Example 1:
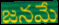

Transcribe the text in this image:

జనమే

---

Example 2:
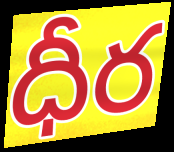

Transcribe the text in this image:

ధీర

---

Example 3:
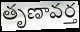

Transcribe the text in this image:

తృణావర్త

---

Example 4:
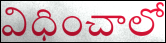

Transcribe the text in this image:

విధించాలో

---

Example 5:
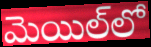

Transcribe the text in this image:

మెయిల్‌లో